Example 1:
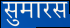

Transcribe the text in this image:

सुमारस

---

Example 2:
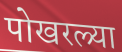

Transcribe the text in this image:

पोखरल्या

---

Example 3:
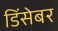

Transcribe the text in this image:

डिंसेबर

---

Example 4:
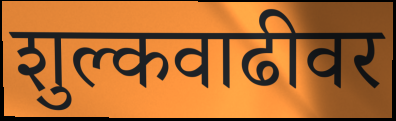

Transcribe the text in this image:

शुल्कवाढीवर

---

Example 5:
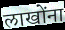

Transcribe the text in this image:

लाखोंना